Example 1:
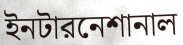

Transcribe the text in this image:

ইনটারনেশানাল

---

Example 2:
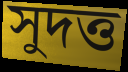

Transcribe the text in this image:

সুদত্ত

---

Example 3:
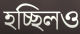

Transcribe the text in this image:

হচ্ছিলও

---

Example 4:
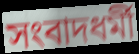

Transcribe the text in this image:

সংবাদধর্মী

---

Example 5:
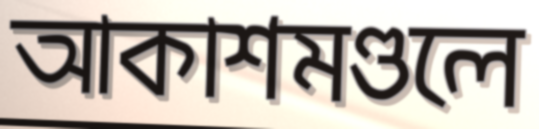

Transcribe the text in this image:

আকাশমণ্ডলে